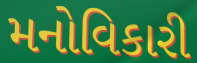
મનોવિકારી